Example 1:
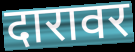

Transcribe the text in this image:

दारावर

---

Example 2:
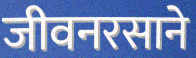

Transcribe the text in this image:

जीवनरसाने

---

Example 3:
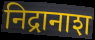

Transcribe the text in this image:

निद्रानाश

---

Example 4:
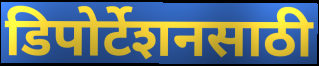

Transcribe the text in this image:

डिपोर्टेशनसाठी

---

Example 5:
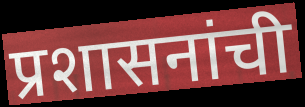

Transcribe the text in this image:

प्रशासनांची